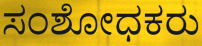
ಸಂಶೋಧಕರು